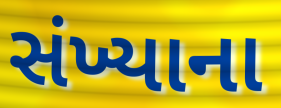
સંખ્યાના